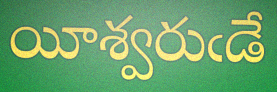
యీశ్వరుఁడే